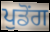
ਪੁਡੋਂਗ